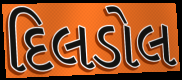
દિલડોલ